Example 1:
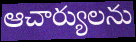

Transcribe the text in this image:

ఆచార్యులను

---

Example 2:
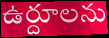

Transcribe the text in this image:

ఉర్దూలను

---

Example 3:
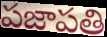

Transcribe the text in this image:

పజాపతి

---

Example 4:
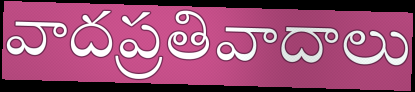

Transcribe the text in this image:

వాదప్రతివాదాలు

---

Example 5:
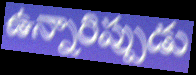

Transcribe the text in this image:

ఉన్నారిప్పుడు